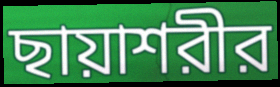
ছায়াশরীর